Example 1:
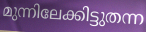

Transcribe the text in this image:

മുന്നിലേക്കിട്ടുതന്ന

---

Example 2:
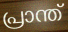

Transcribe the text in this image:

പ്രാന്ത്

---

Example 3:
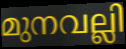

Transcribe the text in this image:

മുനവല്ലി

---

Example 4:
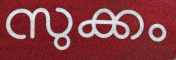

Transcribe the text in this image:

സുക്കം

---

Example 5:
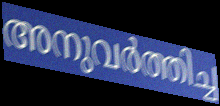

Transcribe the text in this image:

അനുവർത്തിച്ച